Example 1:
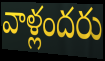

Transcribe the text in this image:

వాళ్లందరు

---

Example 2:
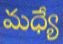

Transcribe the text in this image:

మధ్యే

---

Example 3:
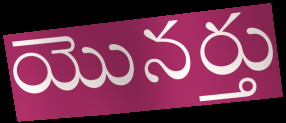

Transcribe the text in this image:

యొనర్తు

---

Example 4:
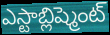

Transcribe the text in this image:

ఎస్టాబ్లిష్మెంట్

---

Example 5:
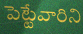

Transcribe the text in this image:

పెట్టేవారిని